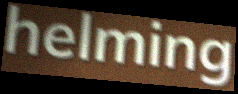
helming